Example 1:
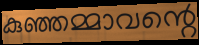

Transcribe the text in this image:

കുഞ്ഞമ്മാവന്റെ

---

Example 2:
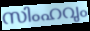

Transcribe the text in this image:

സിംഹവും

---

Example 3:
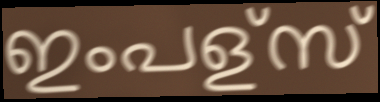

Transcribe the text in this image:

ഇംപള്സ്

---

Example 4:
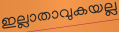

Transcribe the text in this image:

ഇല്ലാതാവുകയല്ല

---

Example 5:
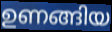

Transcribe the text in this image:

ഉണങ്ങിയ